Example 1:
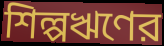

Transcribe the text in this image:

শিল্পঋণের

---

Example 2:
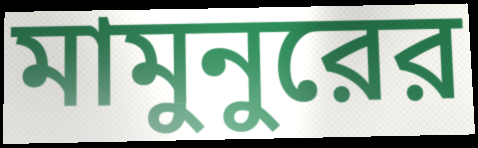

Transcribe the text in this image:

মামুনুরের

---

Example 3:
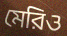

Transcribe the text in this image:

মেরিও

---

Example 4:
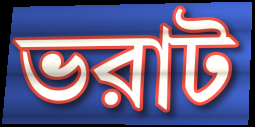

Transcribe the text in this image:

ভরাট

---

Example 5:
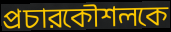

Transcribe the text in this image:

প্রচারকৌশলকে